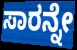
ಸಾರನ್ನೇ